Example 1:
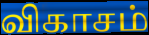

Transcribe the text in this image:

விகாசம்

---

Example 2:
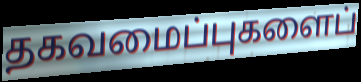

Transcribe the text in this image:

தகவமைப்புகளைப்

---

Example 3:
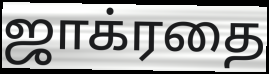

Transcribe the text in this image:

ஜாக்ரதை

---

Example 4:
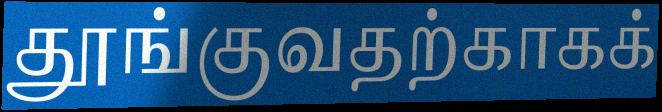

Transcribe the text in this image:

தூங்குவதற்காகக்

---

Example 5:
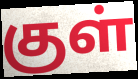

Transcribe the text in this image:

குள்